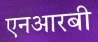
एनआरबी